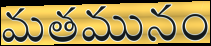
మతమునం